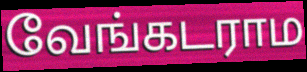
வேங்கடராம